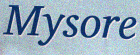
Mysore